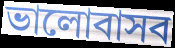
ভালোবাসব